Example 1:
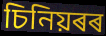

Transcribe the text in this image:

চিনিয়ৰৰ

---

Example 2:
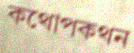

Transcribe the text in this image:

কথোপকথন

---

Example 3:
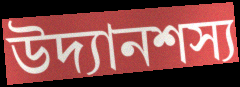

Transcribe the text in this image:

উদ্যানশস্য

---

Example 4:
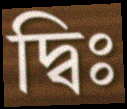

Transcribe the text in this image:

দ্বিঃ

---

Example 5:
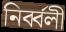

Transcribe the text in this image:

নিৰ্ব্বলী